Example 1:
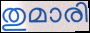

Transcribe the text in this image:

തുമാരി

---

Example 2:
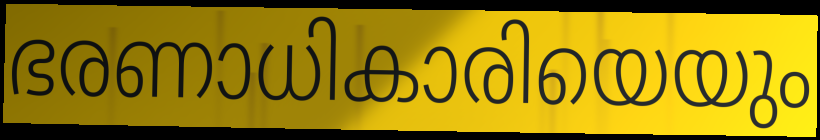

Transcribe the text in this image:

ഭരണാധികാരിയെയും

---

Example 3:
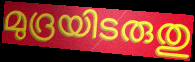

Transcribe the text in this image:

മുദ്രയിടരുതു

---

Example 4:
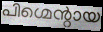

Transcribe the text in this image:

പിഗ്മെന്റായ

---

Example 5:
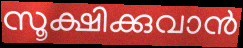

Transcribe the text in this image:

സൂക്ഷിക്കുവാൻ